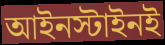
আইনস্টাইনই